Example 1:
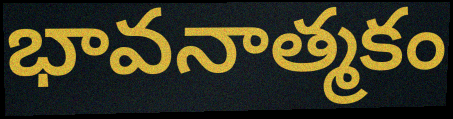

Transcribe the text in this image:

భావనాత్మకం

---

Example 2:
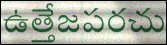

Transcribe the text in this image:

ఉత్తేజపరచు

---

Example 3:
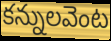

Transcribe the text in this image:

కన్నులవెంట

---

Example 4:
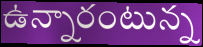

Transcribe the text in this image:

ఉన్నారంటున్న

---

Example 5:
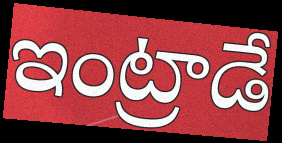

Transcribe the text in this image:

ఇంట్రాడే